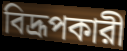
বিদ্রূপকারী